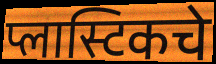
प्लास्टिकचे